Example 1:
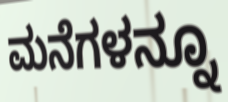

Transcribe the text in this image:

ಮನೆಗಳನ್ನೂ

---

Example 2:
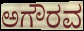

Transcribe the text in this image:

ಅಗೌರವ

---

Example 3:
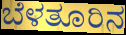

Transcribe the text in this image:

ಬೆಳತೂರಿನ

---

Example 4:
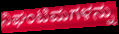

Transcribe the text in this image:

ನಿಘಂಟಿಮಗಳನ್ನು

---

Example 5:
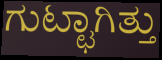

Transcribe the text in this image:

ಗುಟ್ಟಾಗಿತ್ತು